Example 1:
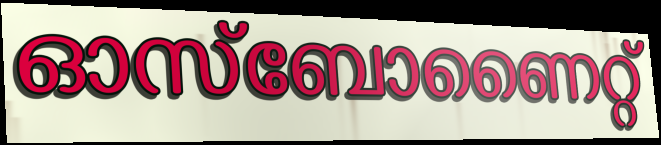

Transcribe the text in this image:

ഓസ്ബോണൈറ്റ്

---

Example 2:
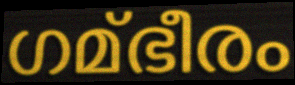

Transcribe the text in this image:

ഗമ്ഭീരം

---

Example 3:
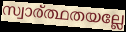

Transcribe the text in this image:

സ്വാര്ത്ഥതയല്ലേ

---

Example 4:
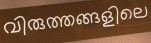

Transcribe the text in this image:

വിരുത്തങ്ങളിലെ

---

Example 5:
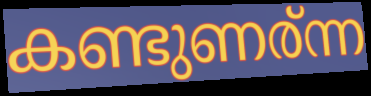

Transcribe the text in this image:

കണ്ടുണര്ന്ന